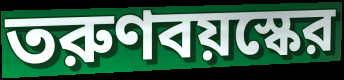
তরুণবয়স্কের